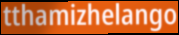
tthamizhelango